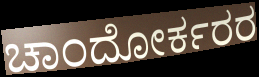
ಚಾಂದೋರ್ಕರರ